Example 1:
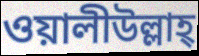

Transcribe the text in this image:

ওয়ালীউল্লাহ্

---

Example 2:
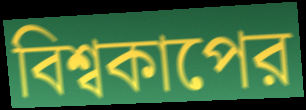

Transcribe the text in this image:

বিশ্বকাপের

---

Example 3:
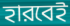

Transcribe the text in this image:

হারবেই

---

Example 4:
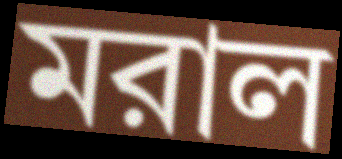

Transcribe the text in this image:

মরাল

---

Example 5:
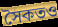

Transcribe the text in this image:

সৈকতও